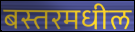
बस्तरमधील